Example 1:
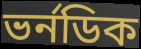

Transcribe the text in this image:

ভর্নডিক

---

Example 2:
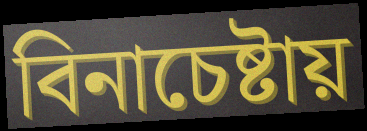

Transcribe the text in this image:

বিনাচেষ্টায়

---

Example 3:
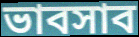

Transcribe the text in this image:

ভাবসাব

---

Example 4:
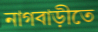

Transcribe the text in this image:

নাগবাড়ীতে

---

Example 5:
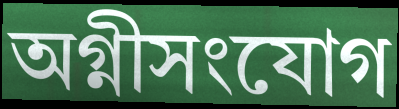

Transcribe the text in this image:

অগ্নীসংযোগ